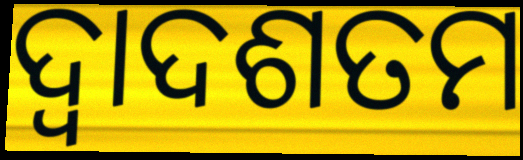
ଦ୍ୱାଦଶତମ